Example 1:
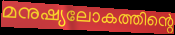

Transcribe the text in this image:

മനുഷ്യലോകത്തിന്റെ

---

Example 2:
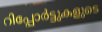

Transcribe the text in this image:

റിപ്പോർട്ടുകളുടെ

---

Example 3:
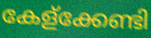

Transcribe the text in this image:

കേള്ക്കേണ്ടി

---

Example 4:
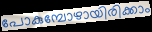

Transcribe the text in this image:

പോകുമ്പോഴായിരിക്കാം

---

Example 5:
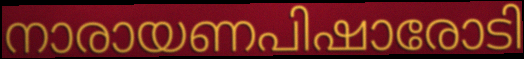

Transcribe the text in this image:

നാരായണപിഷാരോടി